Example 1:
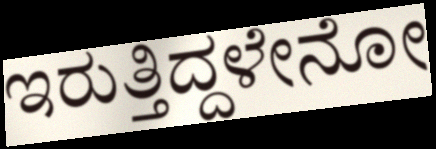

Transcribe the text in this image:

ಇರುತ್ತಿದ್ದಳೇನೋ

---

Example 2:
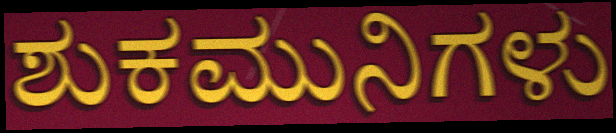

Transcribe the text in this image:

ಶುಕಮುನಿಗಳು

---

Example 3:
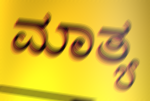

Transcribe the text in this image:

ಮಾತ್ಯ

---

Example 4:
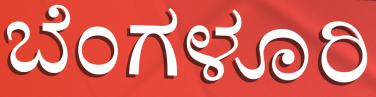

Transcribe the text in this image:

ಬೆಂಗಳೂರಿ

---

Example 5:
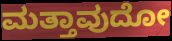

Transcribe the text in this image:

ಮತ್ತಾವುದೋ